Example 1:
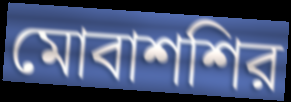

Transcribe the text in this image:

মোবাশশির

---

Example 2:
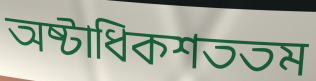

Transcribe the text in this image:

অষ্টাধিকশততম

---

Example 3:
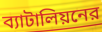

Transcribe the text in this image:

ব্যাটালিয়নের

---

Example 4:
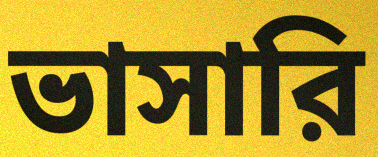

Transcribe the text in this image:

ভাসারি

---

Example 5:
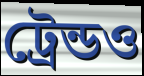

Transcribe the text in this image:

ট্রেন্ডও